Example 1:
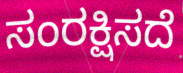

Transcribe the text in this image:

ಸಂರಕ್ಷಿಸದೆ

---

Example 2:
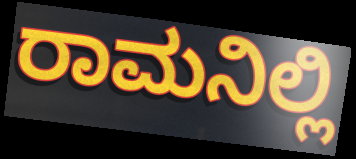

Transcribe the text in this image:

ರಾಮನಿಲ್ಲಿ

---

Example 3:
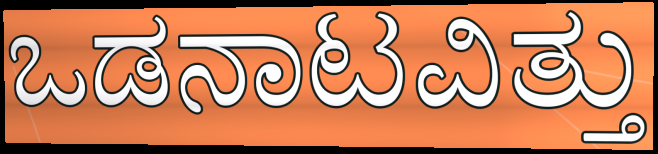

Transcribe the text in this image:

ಒಡನಾಟವಿತ್ತು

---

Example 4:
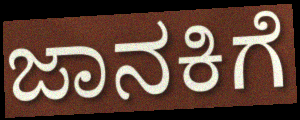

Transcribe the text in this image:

ಜಾನಕಿಗೆ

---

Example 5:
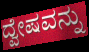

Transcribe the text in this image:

ದ್ವೇಷವನ್ನು